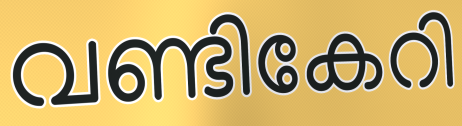
വണ്ടികേറി